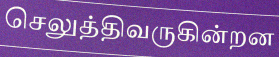
செலுத்திவருகின்றன